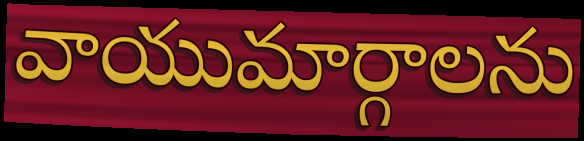
వాయుమార్గాలను